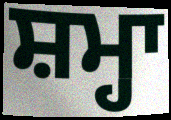
ਸ਼ਮ੍ਹਾ